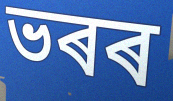
ভৰৰ